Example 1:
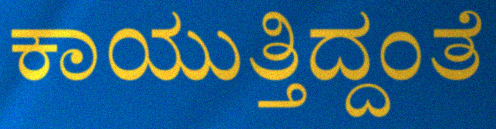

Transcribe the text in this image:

ಕಾಯುತ್ತಿದ್ದಂತೆ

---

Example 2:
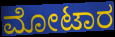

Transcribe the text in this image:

ಮೋಟಾರ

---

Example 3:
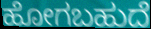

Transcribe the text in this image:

ಹೋಗಬಹುದೆ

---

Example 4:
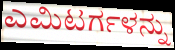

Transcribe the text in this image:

ಎಮಿಟರ್ಗಳನ್ನು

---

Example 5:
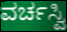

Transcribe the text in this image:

ವರ್ಚಸ್ವಿ